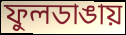
ফুলডাঙায়